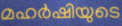
മഹർഷിയുടെ